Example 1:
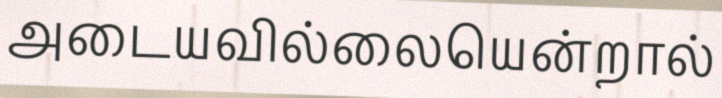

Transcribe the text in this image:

அடையவில்லையென்றால்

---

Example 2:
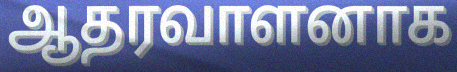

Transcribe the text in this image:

ஆதரவாளனாக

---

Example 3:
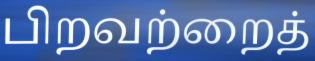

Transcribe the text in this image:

பிறவற்றைத்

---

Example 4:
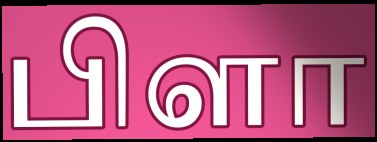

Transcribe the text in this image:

பிளா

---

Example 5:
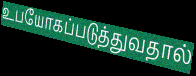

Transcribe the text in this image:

உபயோகப்படுத்துவதால்